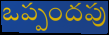
ఒప్పందపు